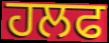
ਹਲਫ